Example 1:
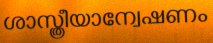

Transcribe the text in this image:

ശാസ്ത്രീയാന്വേഷണം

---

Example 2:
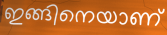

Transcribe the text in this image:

ഇങ്ങിനെയാണ്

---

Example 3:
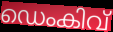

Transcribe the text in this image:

ഡെംകിവ്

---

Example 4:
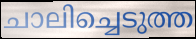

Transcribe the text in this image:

ചാലിച്ചെടുത്ത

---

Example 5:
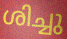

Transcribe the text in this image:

ശിച്ചു